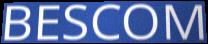
BESCOM